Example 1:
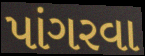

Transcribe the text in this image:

પાંગરવા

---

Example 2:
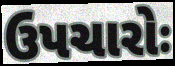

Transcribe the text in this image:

ઉપચારોઃ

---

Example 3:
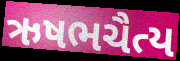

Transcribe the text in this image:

ઋષભચૈત્ય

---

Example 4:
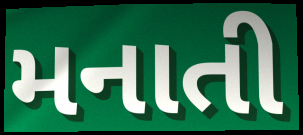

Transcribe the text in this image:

મનાતી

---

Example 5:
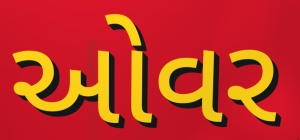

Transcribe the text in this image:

ઓવર